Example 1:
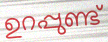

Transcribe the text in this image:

ഉറപ്പുണ്ട്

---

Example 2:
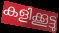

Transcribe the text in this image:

കളിക്കൂട്ടു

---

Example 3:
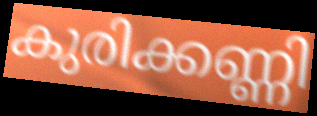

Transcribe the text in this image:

കുരിക്കണ്ണി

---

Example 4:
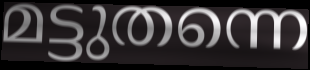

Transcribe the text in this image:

മട്ടുതന്നെ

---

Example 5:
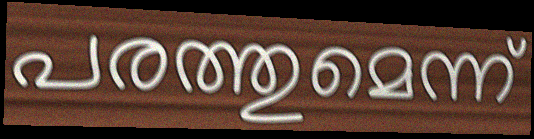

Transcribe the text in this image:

പരത്തുമെന്ന്